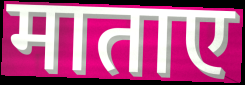
माताए